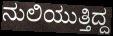
ನುಲಿಯುತ್ತಿದ್ದ